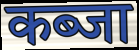
कब्‍जा